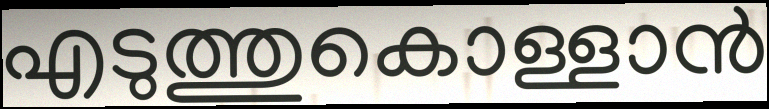
എടുത്തുകൊള്ളാൻ